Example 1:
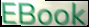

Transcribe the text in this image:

EBook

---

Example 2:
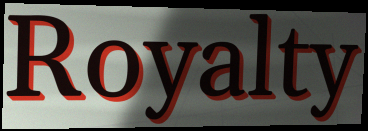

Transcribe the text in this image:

Royalty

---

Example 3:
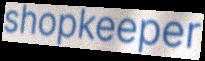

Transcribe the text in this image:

shopkeeper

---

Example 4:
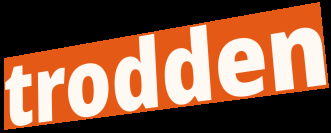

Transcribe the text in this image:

trodden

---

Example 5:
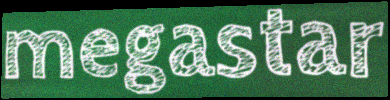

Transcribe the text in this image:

megastar